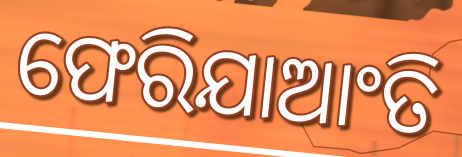
ଫେରିଯାଆଂତି